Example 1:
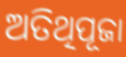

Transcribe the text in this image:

ଅତିଥିପୂଜା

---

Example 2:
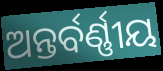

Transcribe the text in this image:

ଅନ୍ତର୍ବର୍ଣ୍ଣୀୟ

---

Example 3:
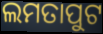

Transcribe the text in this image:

ଲମତାପୁଟ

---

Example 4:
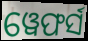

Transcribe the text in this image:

ୱେଫର୍ସ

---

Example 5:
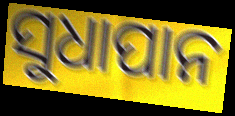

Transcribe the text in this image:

ସୁଧାପାନ